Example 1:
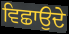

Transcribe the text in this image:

ਵਿਛਾਉਦੇ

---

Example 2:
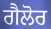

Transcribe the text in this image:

ਗੈਲੋਰ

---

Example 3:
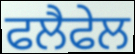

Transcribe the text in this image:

ਫਲੈਫੇਲ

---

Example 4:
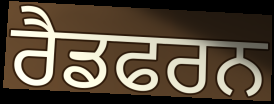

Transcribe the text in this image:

ਰੈਡਫਰਨ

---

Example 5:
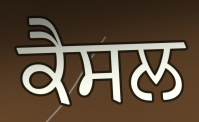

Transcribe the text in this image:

ਕੈਸਲ